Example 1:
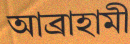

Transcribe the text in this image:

আব্ৰাহামী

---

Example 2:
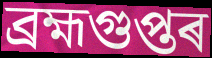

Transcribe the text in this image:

ব্ৰহ্মগুপ্তৰ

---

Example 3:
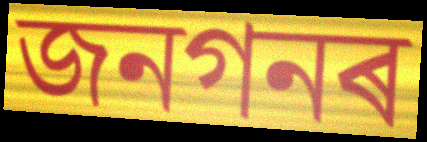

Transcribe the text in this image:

জনগনৰ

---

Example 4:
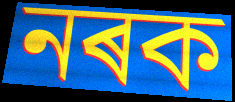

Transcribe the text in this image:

নৰক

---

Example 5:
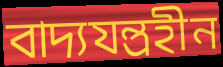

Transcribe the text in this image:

বাদ্যযন্ত্ৰহীন